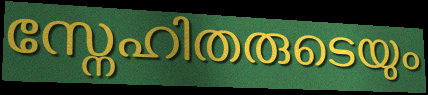
സ്നേഹിതരുടെയും